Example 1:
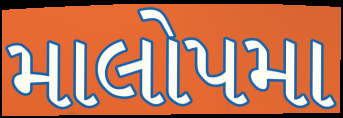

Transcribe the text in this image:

માલોપમા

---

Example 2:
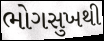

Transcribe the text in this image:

ભોગસુખથી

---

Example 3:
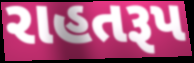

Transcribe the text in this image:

રાહતરૂપ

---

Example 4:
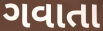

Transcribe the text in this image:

ગવાતા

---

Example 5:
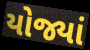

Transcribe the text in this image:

યોજ્યાં